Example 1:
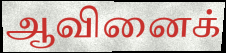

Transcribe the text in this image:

ஆவினைக்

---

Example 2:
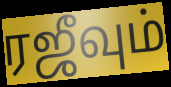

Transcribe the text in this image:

ரஜீவும்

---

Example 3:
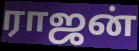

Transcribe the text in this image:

ராஜன்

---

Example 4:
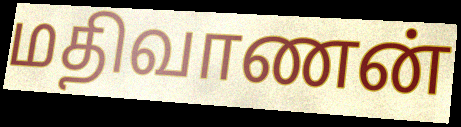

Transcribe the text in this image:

மதிவாணன்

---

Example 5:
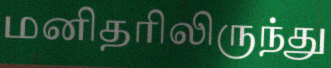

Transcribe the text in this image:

மனிதரிலிருந்து